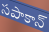
సపాకాన్